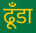
ढूँडा